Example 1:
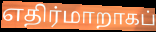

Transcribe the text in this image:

எதிர்மாறாகப்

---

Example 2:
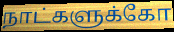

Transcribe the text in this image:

நாட்களுக்கோ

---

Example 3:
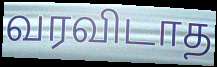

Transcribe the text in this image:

வரவிடாத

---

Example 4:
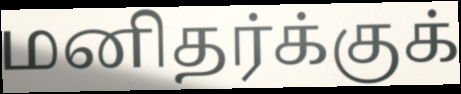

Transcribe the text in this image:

மனிதர்க்குக்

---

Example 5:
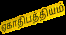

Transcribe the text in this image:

ஏகாதிபத்தியம்